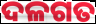
ଦଳଗତ